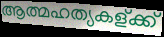
ആത്മഹത്യകള്ക്ക്